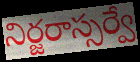
నిర్జరాస్సర్వే